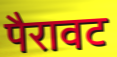
पैरावट